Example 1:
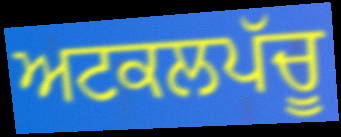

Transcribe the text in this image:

ਅਟਕਲਪੱਚੂ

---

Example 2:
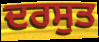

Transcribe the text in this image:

ਦਰਸੁਤ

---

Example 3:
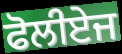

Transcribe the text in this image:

ਫੋਲੀਏਜ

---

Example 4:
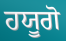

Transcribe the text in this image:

ਹਯੂਗੋ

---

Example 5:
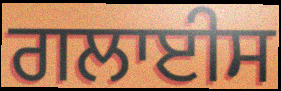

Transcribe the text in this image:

ਗਲਾਈਸ